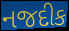
નજદીક